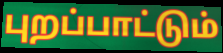
புறப்பாட்டும்